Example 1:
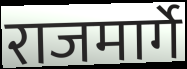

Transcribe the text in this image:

राजमार्गे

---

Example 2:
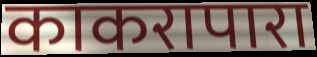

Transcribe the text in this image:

काकरापारा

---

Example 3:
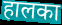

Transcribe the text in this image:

हालका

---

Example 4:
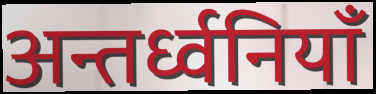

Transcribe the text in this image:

अन्तर्ध्वनियाँ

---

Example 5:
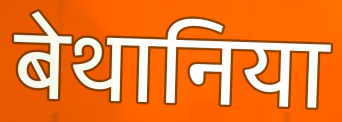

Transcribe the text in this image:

बेथानिया